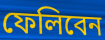
ফেলিবেন